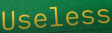
Useless